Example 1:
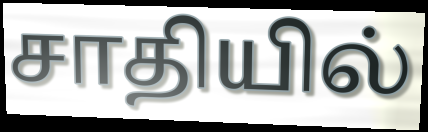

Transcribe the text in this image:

சாதியில்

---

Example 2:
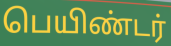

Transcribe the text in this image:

பெயிண்டர்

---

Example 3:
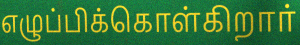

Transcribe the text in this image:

எழுப்பிக்கொள்கிறார்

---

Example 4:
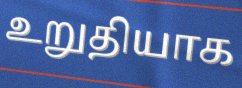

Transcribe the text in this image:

உறுதியாக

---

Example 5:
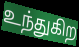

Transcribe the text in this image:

உந்துகிற